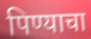
पिण्याचा